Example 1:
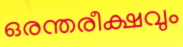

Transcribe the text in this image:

ഒരന്തരീക്ഷവും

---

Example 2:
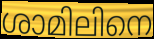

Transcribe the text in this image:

ശാമിലിനെ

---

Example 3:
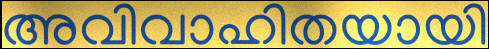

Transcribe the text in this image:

അവിവാഹിതയായി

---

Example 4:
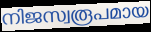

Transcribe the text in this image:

നിജസ്വരൂപമായ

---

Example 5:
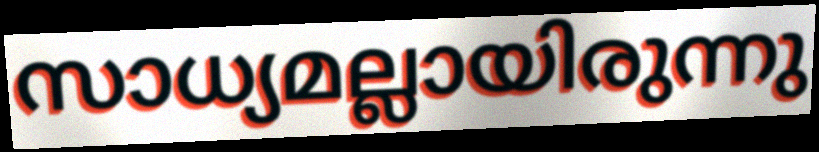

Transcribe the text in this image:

സാധ്യമല്ലായിരുന്നു